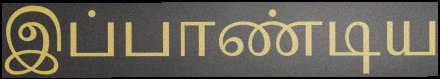
இப்பாண்டிய